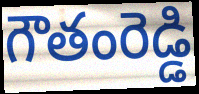
గౌతంరెడ్డి